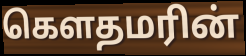
கௌதமரின்